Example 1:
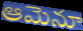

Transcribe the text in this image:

ఆమెనూ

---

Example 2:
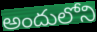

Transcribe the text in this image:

అందులోని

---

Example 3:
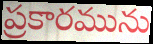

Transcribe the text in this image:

ప్రకారమును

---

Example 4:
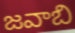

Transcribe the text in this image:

జవాబి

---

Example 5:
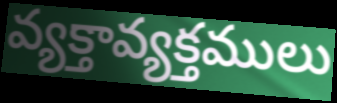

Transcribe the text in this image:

వ్యక్తావ్యక్తములు